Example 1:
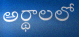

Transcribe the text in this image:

అర్థాలలో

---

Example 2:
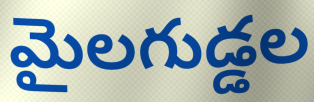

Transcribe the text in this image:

మైలగుడ్డల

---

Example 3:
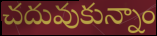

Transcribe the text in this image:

చదువుకున్నాం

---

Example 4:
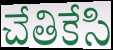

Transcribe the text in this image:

చేతికేసి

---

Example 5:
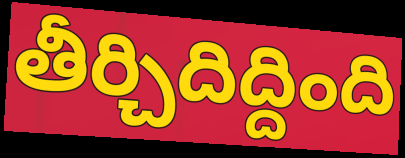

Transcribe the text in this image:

తీర్చిదిద్దింది